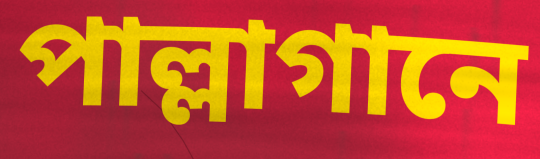
পাল্লাগানে